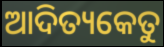
ଆଦିତ୍ୟକେତୁ